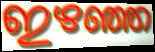
ഇഴഞ്ഞ